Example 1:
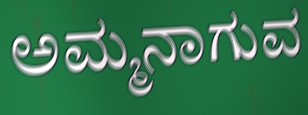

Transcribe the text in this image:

ಅಮ್ಮನಾಗುವ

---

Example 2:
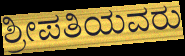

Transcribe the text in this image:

ಶ್ರೀಪತಿಯವರು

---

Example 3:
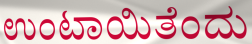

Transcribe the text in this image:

ಉಂಟಾಯಿತೆಂದು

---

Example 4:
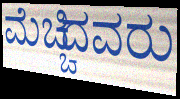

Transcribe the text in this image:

ಮೆಚ್ಚಿದವರು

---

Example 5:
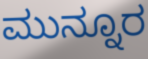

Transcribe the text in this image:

ಮುನ್ನೂರ